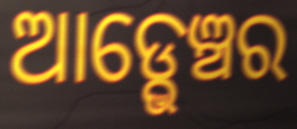
ଆଡ୍ଭେଞ୍ଚର